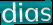
dias